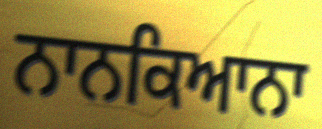
ਨਾਨਕਿਆਨਾ